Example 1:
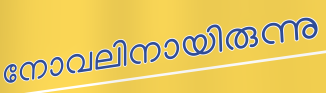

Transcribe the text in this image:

നോവലിനായിരുന്നു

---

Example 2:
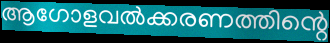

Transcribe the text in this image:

ആഗോളവൽക്കരണത്തിന്റെ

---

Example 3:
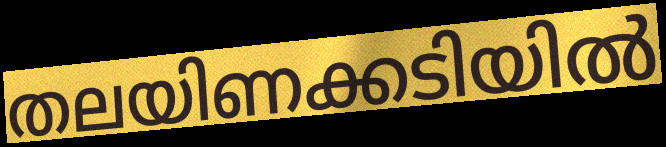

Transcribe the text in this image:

തലയിണക്കടിയിൽ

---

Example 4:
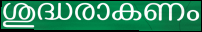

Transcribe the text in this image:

ശുദ്ധരാകണം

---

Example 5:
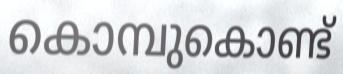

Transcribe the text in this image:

കൊമ്പുകൊണ്ട്